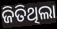
ଜିତିଥିଲା